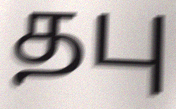
தபு